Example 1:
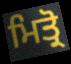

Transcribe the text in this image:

ਮਿਤ੍ਰੋ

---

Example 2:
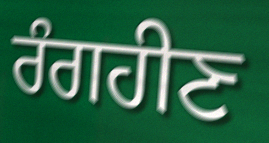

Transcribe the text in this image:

ਰੰਗਹੀਣ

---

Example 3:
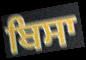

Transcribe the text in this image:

ਬਿਸਾ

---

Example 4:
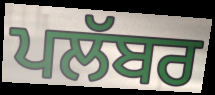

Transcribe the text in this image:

ਪਲੱਬਰ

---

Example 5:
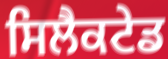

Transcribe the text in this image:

ਸਿਲੈਕਟੇਡ